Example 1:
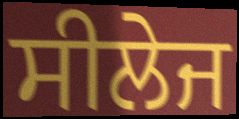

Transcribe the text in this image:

ਸੀਲੇਜ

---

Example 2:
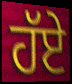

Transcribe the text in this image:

ਹੱਏ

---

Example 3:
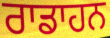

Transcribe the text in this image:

ਰਾਡਾਹਨ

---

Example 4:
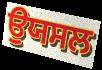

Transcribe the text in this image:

ਉਯਸਲ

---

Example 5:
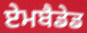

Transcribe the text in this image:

ਏਮਬੈਡੇਡ